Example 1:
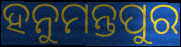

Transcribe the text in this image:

ହନୁମନ୍ତପୁର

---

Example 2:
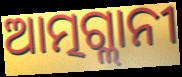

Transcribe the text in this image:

ଆତ୍ମଗ୍ଲାନୀ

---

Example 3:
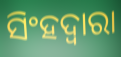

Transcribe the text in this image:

ସିଂହଦ୍ୱାରା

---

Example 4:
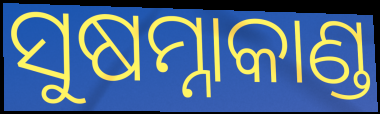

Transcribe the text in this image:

ସୁଷମ୍ନାକାଣ୍ଡ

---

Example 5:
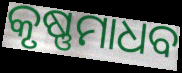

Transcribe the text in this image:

କୃଷ୍ଣମାଧବ